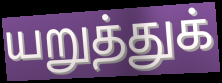
யறுத்துக்